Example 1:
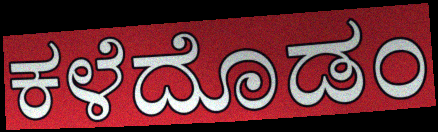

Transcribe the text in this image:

ಕಳೆದೊಡಂ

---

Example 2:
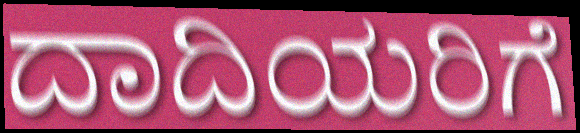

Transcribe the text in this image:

ದಾದಿಯರಿಗೆ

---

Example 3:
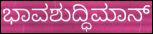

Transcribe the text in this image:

ಭಾವಶುದ್ಧಿಮಾನ್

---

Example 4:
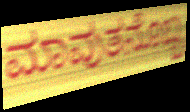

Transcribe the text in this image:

ಮಾವುತನೊಬ್ಬ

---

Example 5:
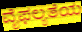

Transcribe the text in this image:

ವೈಫಲ್ಯತೆಯ